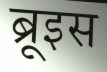
ब्रूइस